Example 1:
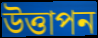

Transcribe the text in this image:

উত্তাপন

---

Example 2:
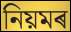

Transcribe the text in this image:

নিয়মৰ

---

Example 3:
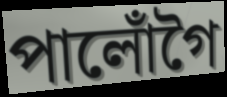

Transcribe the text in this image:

পালোঁগৈ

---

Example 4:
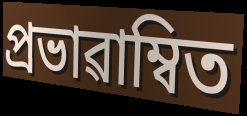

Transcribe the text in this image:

প্ৰভাৱাম্বিত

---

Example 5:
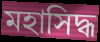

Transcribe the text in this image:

মহাসিদ্ধ